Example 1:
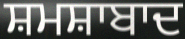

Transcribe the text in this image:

ਸ਼ਮਸ਼ਾਬਾਦ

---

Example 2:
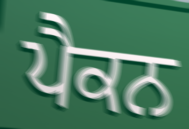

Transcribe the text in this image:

ਪੈਕਨ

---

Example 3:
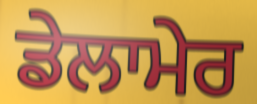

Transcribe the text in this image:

ਡੇਲਾਮੇਰ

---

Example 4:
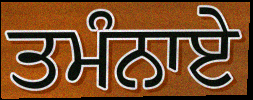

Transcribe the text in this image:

ਤਮੰਨਾਏ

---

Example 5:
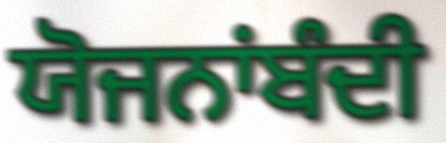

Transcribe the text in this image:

ਯੋਜਨਾਂਬੰਦੀ